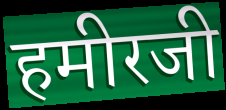
हमीरजी